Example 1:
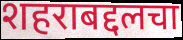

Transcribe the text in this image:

शहराबद्दलचा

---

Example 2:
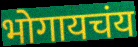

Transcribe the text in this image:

भोगायचंय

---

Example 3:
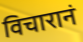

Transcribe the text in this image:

विचारानं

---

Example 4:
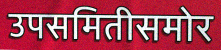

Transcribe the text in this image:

उपसमितीसमोर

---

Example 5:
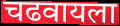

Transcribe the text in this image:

चढवायला